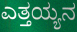
ಎತ್ತಯ್ಯನ